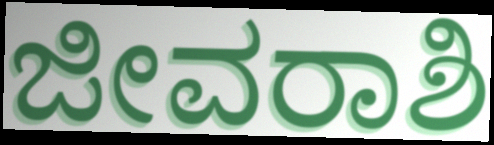
ಜೀವರಾಶಿ